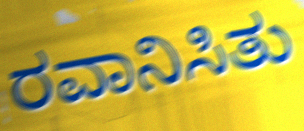
ರವಾನಿಸಿತು